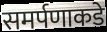
समर्पणाकडे